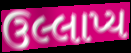
ઉલ્લાપ્ય